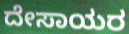
ದೇಸಾಯರ